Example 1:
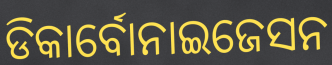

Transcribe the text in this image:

ଡିକାର୍ବୋନାଇଜେସନ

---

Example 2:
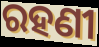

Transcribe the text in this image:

ରହଣୀ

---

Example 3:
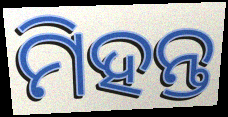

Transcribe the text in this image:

ମିହନ୍ତ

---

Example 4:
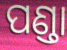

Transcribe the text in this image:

ପଣ୍ଡା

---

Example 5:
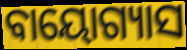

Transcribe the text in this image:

ବାୟୋଗ୍ୟାସ